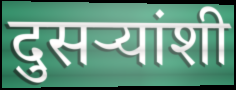
दुसर्‍यांशी